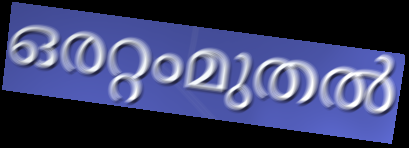
ഒരറ്റംമുതൽ